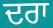
ਦਰਾ